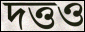
দত্তও